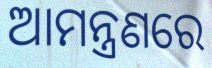
ଆମନ୍ତ୍ରଣରେ